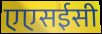
एएसईसी